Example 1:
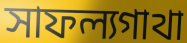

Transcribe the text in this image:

সাফল্যগাথা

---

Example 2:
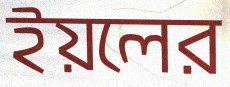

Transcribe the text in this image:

ইয়লের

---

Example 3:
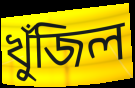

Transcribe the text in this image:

খুঁজিল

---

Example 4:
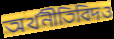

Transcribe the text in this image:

অর্থনীতিবিদও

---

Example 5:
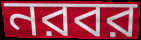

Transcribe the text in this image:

নরবর